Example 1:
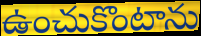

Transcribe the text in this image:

ఉంచుకొంటాను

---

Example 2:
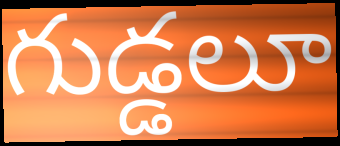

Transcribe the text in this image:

గుడ్డలూ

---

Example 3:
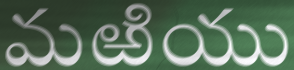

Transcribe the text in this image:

మఱియు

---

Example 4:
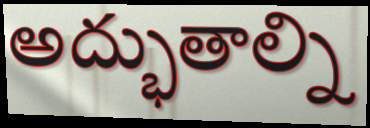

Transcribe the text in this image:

అద్భుతాల్ని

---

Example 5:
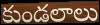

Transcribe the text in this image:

కుండలాలు